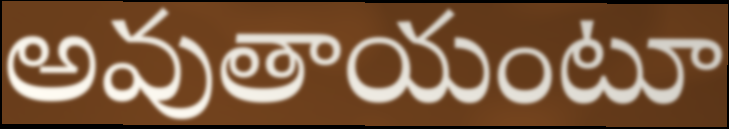
అవుతాయంటూ